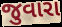
જુવારા